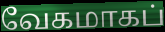
வேகமாகப்